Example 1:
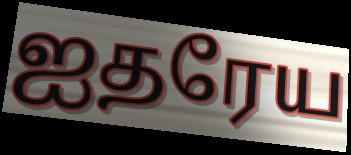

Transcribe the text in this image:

ஐதரேய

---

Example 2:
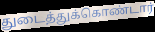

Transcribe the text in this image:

துடைத்துக்கொண்டார்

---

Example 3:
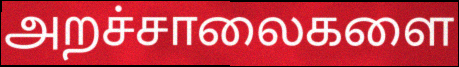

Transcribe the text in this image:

அறச்சாலைகளை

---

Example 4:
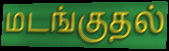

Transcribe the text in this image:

மடங்குதல்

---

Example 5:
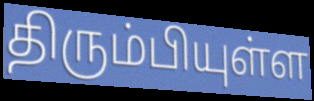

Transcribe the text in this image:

திரும்பியுள்ள